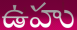
ఉహు